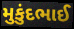
મુકુંદભાઈ